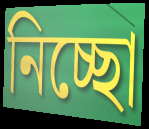
নিচ্ছো